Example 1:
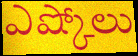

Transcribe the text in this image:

ఎష్కోలు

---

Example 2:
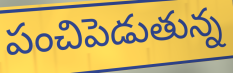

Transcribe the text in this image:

పంచిపెడుతున్న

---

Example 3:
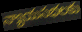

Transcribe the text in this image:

న్యాయసభలకు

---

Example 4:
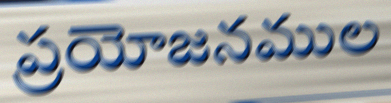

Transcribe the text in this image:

ప్రయోజనముల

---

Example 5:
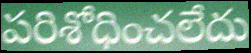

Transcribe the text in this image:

పరిశోధించలేదు